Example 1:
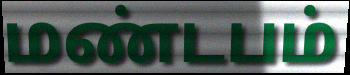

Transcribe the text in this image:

மண்டபம்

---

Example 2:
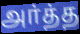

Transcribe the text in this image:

அர்த்த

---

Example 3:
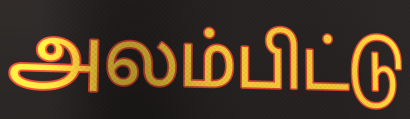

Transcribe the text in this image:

அலம்பிட்டு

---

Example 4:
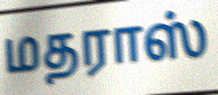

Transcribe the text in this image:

மதராஸ்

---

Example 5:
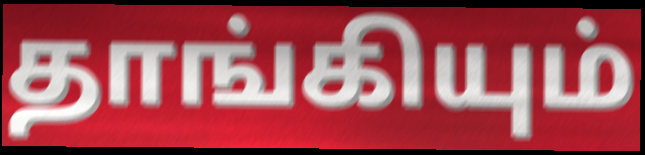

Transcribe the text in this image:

தாங்கியும்